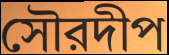
সৌরদীপ